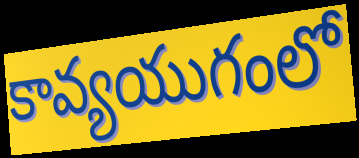
కావ్యయుగంలో